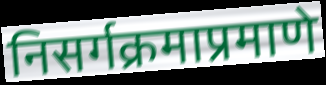
निसर्गक्रमाप्रमाणे